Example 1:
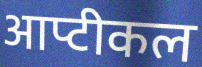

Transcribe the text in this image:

आप्टीकल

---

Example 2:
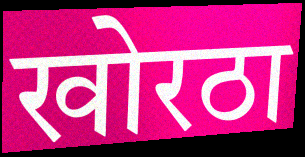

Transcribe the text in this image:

खोरठा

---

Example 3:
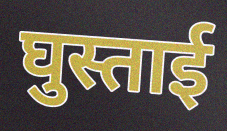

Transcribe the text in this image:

घुस्ताई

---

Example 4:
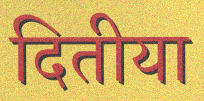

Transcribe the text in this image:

दितीया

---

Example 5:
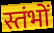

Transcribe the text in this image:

स्तंभों